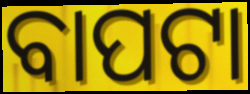
ବାପଟା